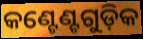
କଣ୍ଟେଣ୍ଟଗୁଡ଼ିକ